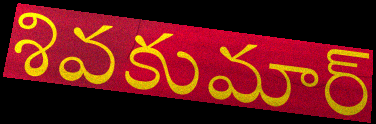
శివకుమార్